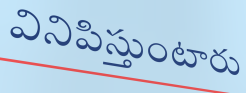
వినిపిస్తుంటారు